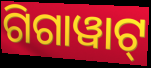
ଗିଗାୱାଟ୍